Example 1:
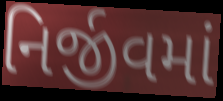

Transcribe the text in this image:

નિર્જીવમાં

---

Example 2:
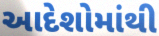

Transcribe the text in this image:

આદેશોમાંથી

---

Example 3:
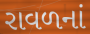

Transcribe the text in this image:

રાવળનાં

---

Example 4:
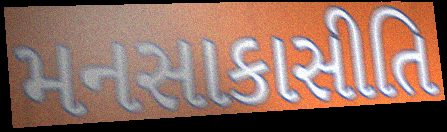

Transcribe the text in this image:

મનસાકાસીતિ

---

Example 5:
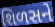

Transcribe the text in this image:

શિળસને